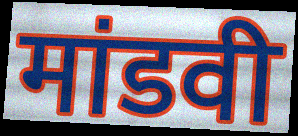
मांडवी